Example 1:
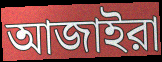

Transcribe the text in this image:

আজাইরা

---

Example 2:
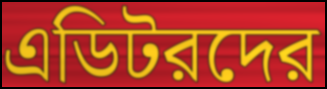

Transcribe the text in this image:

এডিটরদের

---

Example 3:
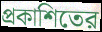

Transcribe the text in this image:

প্রকাশিতের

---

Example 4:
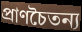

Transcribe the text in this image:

প্রাণচৈতন্য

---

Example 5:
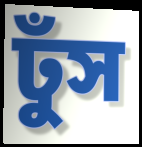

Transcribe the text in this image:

ঢুঁস